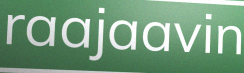
raajaavin